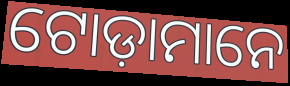
ଟୋଡ଼ାମାନେ